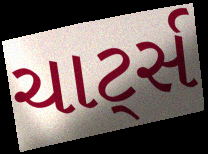
ચાર્ટ્સ